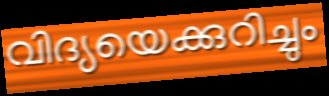
വിദ്യയെക്കുറിച്ചും